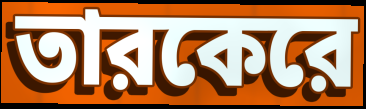
তারকেরে